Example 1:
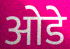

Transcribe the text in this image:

ओडे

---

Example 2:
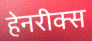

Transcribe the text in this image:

हेनरीक्स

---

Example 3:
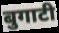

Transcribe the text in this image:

बुगाटी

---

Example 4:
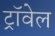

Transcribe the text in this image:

ट्रॉवेल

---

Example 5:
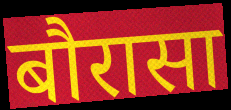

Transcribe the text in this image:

बौरासा